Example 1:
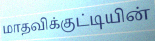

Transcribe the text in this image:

மாதவிக்குட்டியின்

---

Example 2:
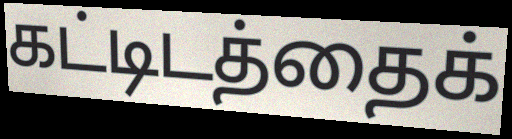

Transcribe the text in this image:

கட்டிடத்தைக்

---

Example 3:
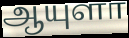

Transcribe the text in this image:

ஆயுளா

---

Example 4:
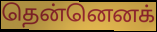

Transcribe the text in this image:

தென்னெனக்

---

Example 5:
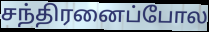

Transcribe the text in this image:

சந்திரனைப்போல